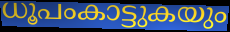
ധൂപംകാട്ടുകയും